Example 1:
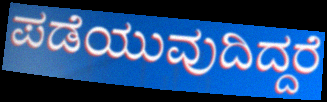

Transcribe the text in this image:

ಪಡೆಯುವುದಿದ್ದರೆ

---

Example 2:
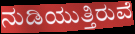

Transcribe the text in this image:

ನುಡಿಯುತ್ತಿರುವೆ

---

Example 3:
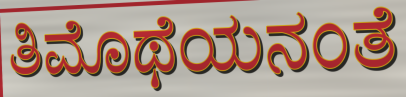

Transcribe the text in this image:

ತಿಮೊಥೆಯನಂತೆ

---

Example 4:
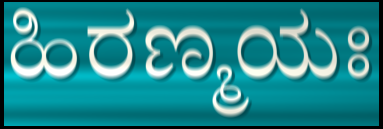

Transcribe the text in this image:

ಹಿರಣ್ಮಯಃ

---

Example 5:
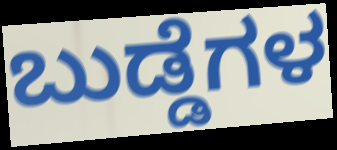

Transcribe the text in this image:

ಬುಡ್ಡೆಗಳ